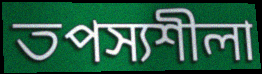
তপস্যশীলা